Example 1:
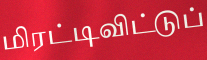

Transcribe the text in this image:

மிரட்டிவிட்டுப்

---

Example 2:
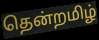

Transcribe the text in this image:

தென்றமிழ்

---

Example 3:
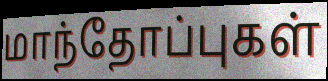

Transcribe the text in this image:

மாந்தோப்புகள்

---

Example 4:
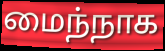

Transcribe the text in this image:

மைந்நாக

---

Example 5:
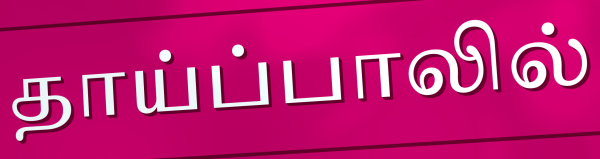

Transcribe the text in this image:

தாய்ப்பாலில்